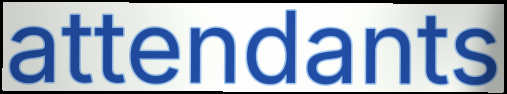
attendants